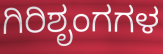
ಗಿರಿಶೃಂಗಗಳ